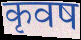
कृवष